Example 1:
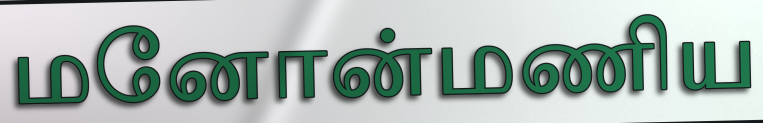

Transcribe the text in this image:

மனோன்மணிய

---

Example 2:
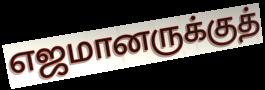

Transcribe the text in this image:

எஜமானருக்குத்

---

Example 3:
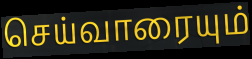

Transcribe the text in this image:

செய்வாரையும்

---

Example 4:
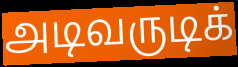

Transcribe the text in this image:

அடிவருடிக்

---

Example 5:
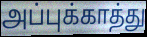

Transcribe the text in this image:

அப்புக்காத்து